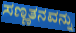
ಸಣ್ಣತನವನ್ನು